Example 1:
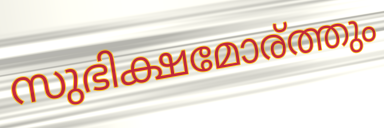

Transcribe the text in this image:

സുഭിക്ഷമോര്ത്തും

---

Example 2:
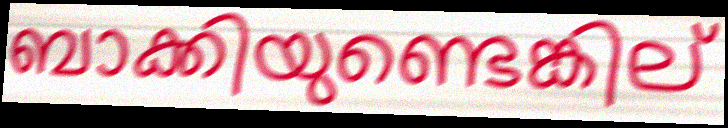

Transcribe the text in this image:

ബാക്കിയുണ്ടെങ്കില്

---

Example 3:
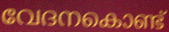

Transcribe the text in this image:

വേദനകൊണ്ട്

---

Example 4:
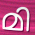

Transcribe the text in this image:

മി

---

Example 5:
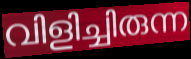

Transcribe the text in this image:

വിളിച്ചിരുന്ന